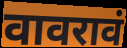
वावरावं